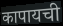
कापायची